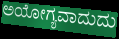
ಅಯೋಗ್ಯವಾದುದು